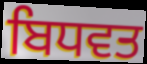
ਬਿਧਵਤ